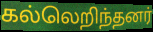
கல்லெறிந்தனர்